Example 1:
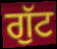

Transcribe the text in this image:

ਗੁੱਟ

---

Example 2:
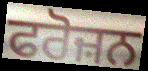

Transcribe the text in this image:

ਫਰੋਜ਼ਨ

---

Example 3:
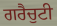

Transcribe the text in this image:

ਗਰੈਚੁਟੀ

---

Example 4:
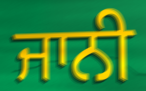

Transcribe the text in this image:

ਜਾਨੀ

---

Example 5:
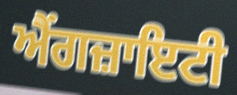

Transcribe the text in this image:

ਐਂਗਜ਼ਾਇਟੀ